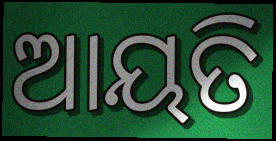
ଆୟତି